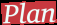
Plan